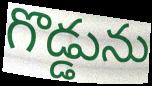
గొడ్డును